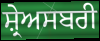
ਸ਼੍ਰੇਅਸਬਰੀ